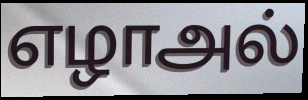
எழாஅல்